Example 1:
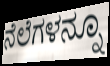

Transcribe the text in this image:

ನೆಲೆಗಳನ್ನೂ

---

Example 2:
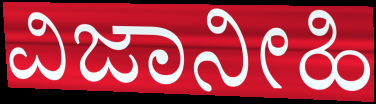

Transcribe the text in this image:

ವಿಜಾನೀಹಿ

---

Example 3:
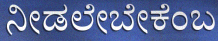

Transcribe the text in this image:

ನೀಡಲೇಬೇಕೆಂಬ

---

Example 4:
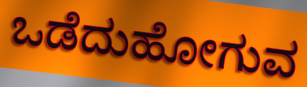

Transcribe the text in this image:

ಒಡೆದುಹೋಗುವ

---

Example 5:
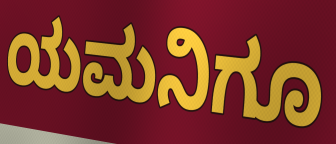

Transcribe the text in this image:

ಯಮನಿಗೂ